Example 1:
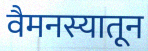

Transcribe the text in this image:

वैमनस्यातून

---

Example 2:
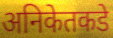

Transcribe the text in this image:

अनिकेतकडे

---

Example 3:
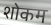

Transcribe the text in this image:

शोकम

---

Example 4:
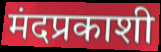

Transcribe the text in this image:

मंदप्रकाशी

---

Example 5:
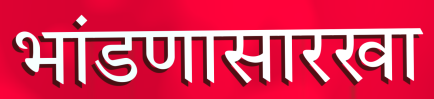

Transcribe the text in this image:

भांडणासारखा